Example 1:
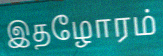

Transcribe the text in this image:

இதழோரம்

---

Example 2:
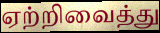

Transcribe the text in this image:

ஏற்றிவைத்து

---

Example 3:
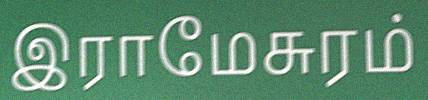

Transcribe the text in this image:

இராமேசுரம்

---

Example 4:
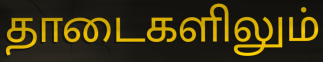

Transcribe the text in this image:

தாடைகளிலும்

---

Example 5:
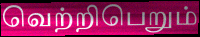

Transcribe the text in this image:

வெற்றிபெறும்